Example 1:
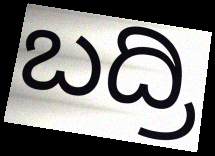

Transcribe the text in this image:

ಬದ್ರಿ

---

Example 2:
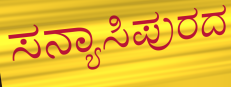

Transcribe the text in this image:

ಸನ್ಯಾಸಿಪುರದ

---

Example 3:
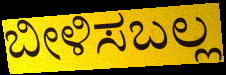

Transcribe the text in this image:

ಬೀಳಿಸಬಲ್ಲ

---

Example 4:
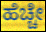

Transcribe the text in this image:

ಹೆಚ್ಚೇ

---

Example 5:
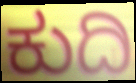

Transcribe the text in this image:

ಕುದಿ